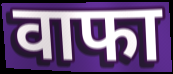
वाफा